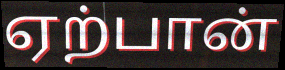
ஏற்பான்